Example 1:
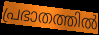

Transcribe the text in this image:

പ്രഭാതത്തിൽ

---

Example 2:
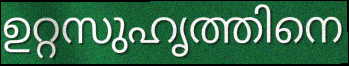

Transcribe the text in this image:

ഉറ്റസുഹൃത്തിനെ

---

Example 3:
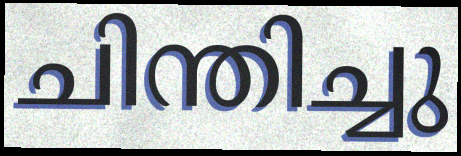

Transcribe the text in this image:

ചിന്തിച്ചു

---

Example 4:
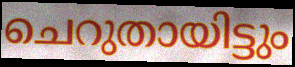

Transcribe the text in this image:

ചെറുതായിട്ടും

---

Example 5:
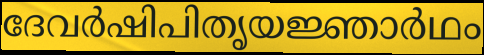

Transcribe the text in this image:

ദേവർഷിപിതൃയജ്ഞാർഥം